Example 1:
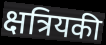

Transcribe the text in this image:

क्षत्रियकी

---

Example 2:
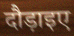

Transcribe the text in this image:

दौड़ाइए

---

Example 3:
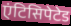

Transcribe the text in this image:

एंटिसिपेटेड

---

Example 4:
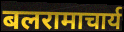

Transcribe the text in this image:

बलरामाचार्य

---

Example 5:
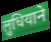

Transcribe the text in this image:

लुधियाने